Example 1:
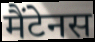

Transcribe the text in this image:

मैंटेनस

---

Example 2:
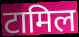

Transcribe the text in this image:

टामिल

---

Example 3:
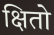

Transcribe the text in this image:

क्षितो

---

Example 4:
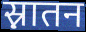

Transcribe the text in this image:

स्नातन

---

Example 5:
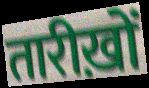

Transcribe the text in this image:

तारीख़ों